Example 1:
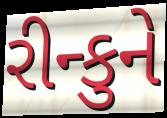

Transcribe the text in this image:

રીન્કુને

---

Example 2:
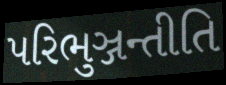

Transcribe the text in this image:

પરિભુઞ્જન્તીતિ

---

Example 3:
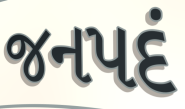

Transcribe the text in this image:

જનપદં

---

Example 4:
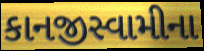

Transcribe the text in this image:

કાનજીસ્વામીના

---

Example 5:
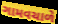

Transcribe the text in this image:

ગામવચાળે